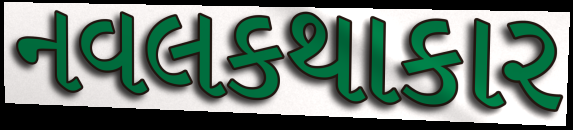
નવલકથાકાર